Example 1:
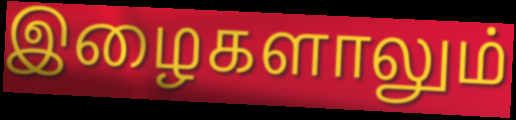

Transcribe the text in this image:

இழைகளாலும்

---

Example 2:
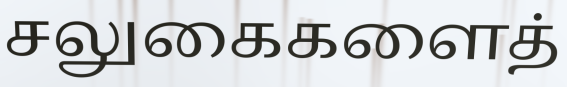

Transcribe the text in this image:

சலுகைகளைத்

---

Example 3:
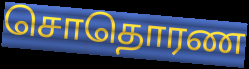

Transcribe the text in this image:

சொதொரண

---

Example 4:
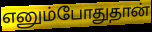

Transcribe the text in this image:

எனும்போதுதான்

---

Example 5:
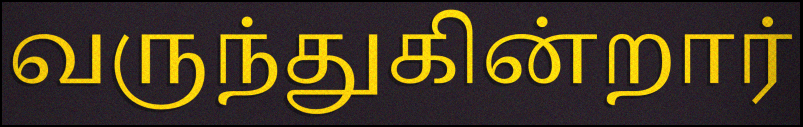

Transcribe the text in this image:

வருந்துகின்றார்